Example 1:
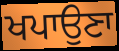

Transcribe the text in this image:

ਖਪਾਉਣਾ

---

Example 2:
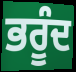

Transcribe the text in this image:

ਭਰੂੰਦ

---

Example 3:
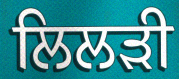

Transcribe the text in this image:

ਲਿਲੜੀ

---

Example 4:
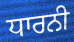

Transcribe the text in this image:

ਧਾਰਨੀ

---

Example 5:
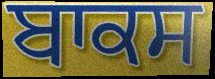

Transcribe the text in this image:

ਬਾਕਸ